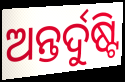
ଅନ୍ତର୍ଦୁଷ୍ଟି